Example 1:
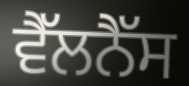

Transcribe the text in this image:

ਵੈੱਲਨੈੱਸ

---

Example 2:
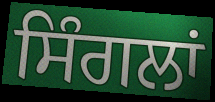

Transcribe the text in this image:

ਸਿੰਗਲਾਂ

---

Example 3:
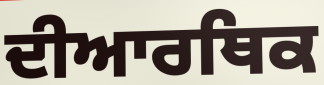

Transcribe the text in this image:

ਦੀਆਰਥਿਕ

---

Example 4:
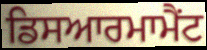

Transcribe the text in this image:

ਡਿਸਆਰਮਾਮੈਂਟ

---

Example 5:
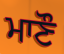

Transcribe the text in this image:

ਮਾਣੌ